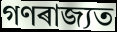
গণৰাজ্যত